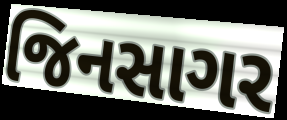
જિનસાગર